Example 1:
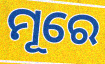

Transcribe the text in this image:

ମୂରେ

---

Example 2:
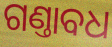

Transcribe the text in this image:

ଗଣ୍ତାବଧ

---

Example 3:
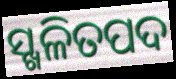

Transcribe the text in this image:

ସ୍ଖଳିତପଦ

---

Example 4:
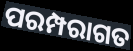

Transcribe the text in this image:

ପରମ୍ପରାଗତ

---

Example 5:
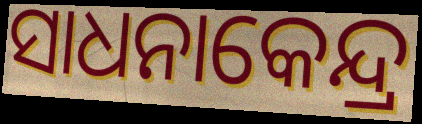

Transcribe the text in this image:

ସାଧନାକେନ୍ଦ୍ର